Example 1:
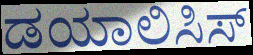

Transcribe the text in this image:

ಡಯಾಲಿಸಿಸ್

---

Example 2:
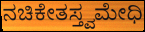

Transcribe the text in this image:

ನಚಿಕೇತಸ್ತ್ವಮೇಧಿ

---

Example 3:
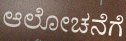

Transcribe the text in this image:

ಆಲೋಚನೆಗೆ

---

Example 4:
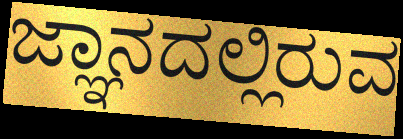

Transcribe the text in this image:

ಜ್ಞಾನದಲ್ಲಿರುವ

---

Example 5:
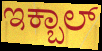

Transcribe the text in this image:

ಇಕ್ಬಾಲ್